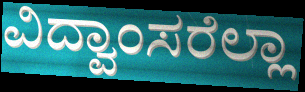
ವಿದ್ವಾಂಸರೆಲ್ಲಾ